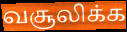
வசூலிக்க